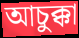
আচুক্কা